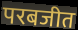
परबजीत